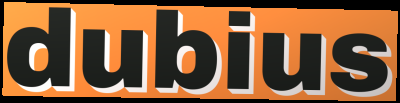
dubius